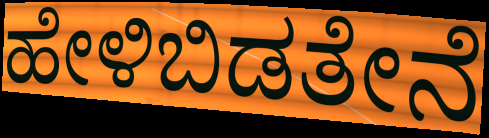
ಹೇಳಿಬಿಡತೇನೆ